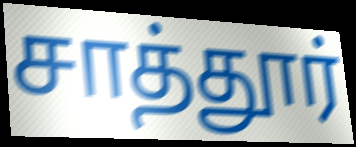
சாத்தூர்